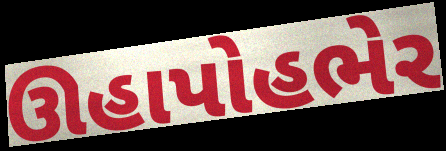
ઊહાપોહભેર